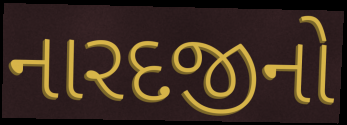
નારદજીનો